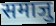
समाजु